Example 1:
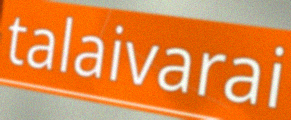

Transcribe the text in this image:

talaivarai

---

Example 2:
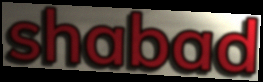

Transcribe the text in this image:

shabad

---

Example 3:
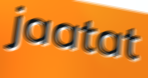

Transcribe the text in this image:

jaatat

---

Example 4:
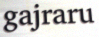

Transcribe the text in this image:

gajraru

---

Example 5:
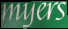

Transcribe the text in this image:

myers